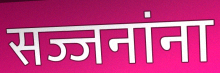
सज्जनांना